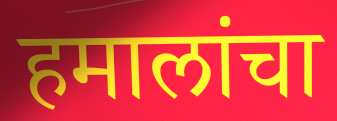
हमालांचा